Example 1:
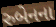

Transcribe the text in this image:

રુબેનના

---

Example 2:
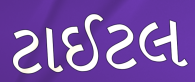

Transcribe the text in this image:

ટાઈટલ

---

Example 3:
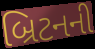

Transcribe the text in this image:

બ્રિટનની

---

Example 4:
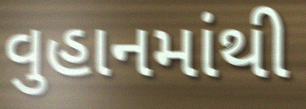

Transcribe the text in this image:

વુહાનમાંથી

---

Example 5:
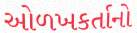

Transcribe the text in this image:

ઓળખકર્તાનો